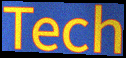
Tech